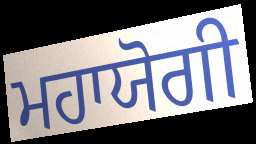
ਮਹਾਯੋਗੀ